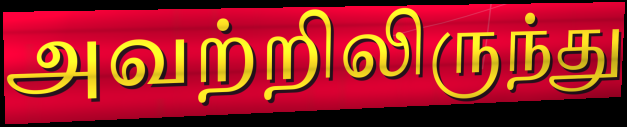
அவற்றிலிருந்து